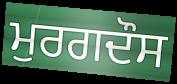
ਮੁਰਗਦੌਸ